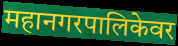
महानगरपालिकेवर